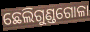
ଛେଲିଗୁଣ୍ଡଗୋଳା